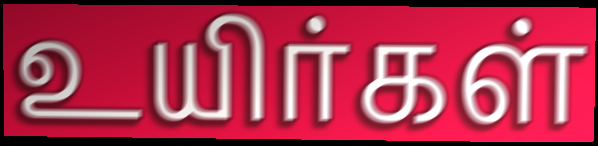
உயிர்கள்